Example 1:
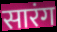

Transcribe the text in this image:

सारंग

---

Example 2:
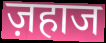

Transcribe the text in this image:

ज़हाज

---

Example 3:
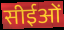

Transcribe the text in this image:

सीईओं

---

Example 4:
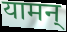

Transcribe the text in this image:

यामन्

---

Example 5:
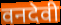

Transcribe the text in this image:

वनदेवी